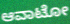
ಆವಾಟೋ